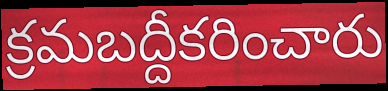
క్రమబద్దీకరించారు